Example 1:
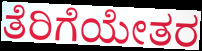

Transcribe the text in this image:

ತೆರಿಗೆಯೇತರ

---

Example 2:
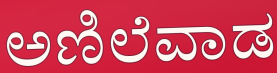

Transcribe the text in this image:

ಅಣಿಲೆವಾಡ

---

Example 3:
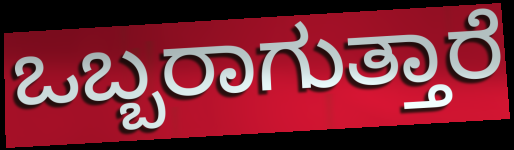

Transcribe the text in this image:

ಒಬ್ಬರಾಗುತ್ತಾರೆ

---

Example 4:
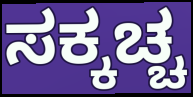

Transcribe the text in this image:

ಸಕ್ಕಚ್ಚ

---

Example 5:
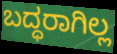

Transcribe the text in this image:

ಬದ್ಧರಾಗಿಲ್ಲ